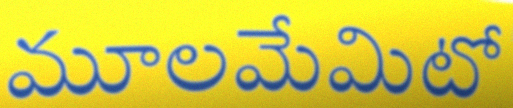
మూలమేమిటో